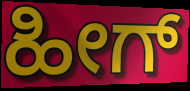
ಹೀಗ್